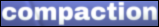
compaction